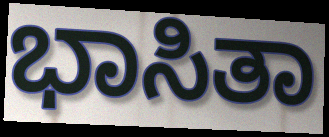
ಭಾಸಿತಾ